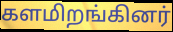
களமிறங்கினர்